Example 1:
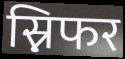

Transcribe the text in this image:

स्निफर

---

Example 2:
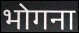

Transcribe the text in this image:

भोगना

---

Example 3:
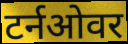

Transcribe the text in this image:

टर्नओवर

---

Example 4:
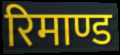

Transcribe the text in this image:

रिमाण्ड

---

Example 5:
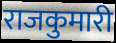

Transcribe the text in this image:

राजकुमारी